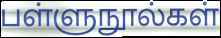
பள்ளுநூல்கள்